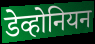
डेव्होनियन